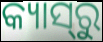
କ୍ୟାସ୍‌ରୁ